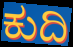
ಕುದಿ